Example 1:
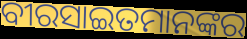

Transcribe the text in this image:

ବୀରସାଇତମାନଙ୍କର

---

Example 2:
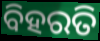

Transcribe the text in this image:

ବିହରତି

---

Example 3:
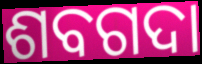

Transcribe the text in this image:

ଶବଗଦା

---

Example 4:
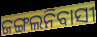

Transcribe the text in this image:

ଜଙ୍ଗଲନିବାସୀ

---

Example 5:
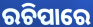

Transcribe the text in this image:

ରଚିପାରେ